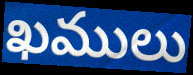
ఖములు